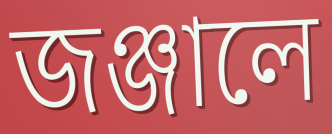
জঞ্জালে